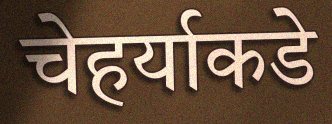
चेहर्याकडे